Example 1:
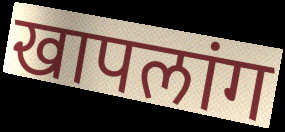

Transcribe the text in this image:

खापलांग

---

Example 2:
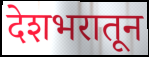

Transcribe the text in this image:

देशभरातून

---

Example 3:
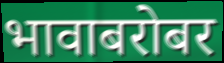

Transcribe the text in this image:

भावाबरोबर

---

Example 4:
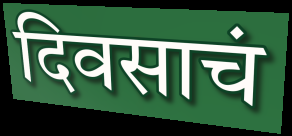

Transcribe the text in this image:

दिवसाचं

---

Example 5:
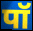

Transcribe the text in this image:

पॉ